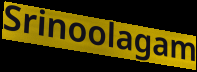
Srinoolagam